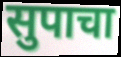
सुपाचा